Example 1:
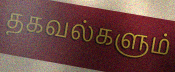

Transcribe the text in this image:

தகவல்களும்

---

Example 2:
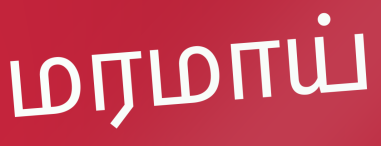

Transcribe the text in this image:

மரமாய்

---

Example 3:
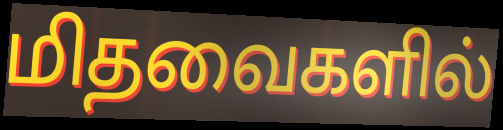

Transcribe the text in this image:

மிதவைகளில்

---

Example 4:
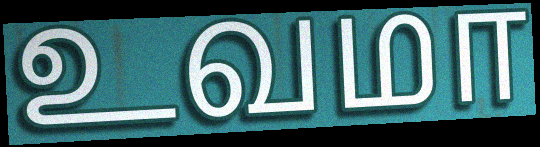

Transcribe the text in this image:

உவமா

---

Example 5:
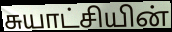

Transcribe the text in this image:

சுயாட்சியின்